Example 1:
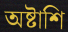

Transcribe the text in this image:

অষ্টাশি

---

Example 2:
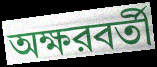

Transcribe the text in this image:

অক্ষরবর্তী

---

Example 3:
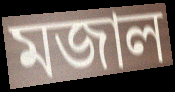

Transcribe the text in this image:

মজাল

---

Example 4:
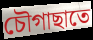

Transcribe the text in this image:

চৌগাছাতে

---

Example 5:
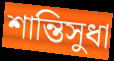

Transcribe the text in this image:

শান্তিসুধা